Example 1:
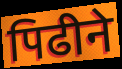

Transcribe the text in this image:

पिढीने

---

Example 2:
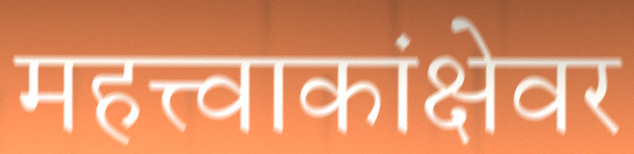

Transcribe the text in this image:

महत्त्वाकांक्षेवर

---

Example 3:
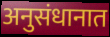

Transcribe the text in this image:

अनुसंधानात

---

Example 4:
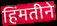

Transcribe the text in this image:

हिंमतीने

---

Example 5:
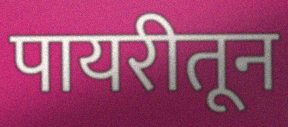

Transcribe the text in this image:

पायरीतून